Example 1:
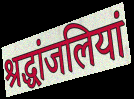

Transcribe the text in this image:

श्रद्धांजलियां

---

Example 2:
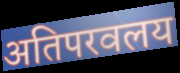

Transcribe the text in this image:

अतिपरवलय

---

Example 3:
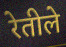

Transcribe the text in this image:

रेतीले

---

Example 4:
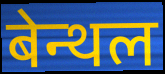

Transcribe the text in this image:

बेन्थल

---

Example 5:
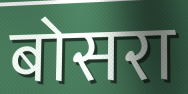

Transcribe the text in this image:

बोसरा